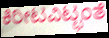
ಕಿರೀಟವಿಟ್ಟಂತೆ